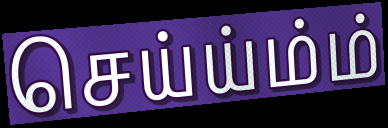
செய்ய்ம்ம்